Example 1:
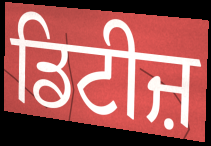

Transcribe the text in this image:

ਡਿਟੀਜ਼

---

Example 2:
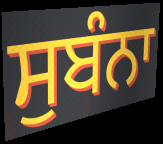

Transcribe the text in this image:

ਸੁਬੰਨਾ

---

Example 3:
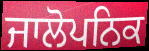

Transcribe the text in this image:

ਜਾਲੋਪਨਿਕ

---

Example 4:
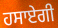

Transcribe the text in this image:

ਹਸਾਏਗੀ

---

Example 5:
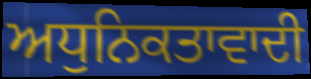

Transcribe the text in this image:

ਅਧੁਨਿਕਤਾਵਾਦੀ